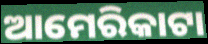
ଆମେରିକାଟା